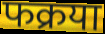
फक्रया